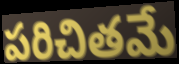
పరిచితమే